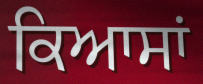
ਕਿਆਸਾਂ